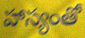
హాస్యంతో